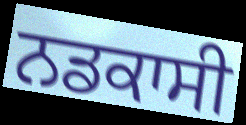
ਨਡਕਾਸੀ